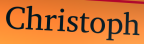
Christoph